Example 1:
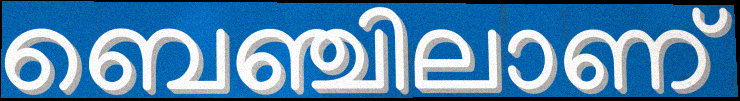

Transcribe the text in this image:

ബെഞ്ചിലാണ്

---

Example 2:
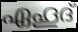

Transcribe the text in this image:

ഏഹൂദ്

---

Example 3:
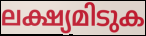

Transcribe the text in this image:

ലക്ഷ്യമിടുക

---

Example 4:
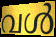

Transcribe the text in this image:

വൾ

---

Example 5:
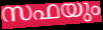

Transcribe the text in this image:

സഫയും